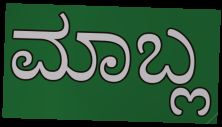
ಮಾಬ್ಲ